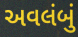
અવલંબું